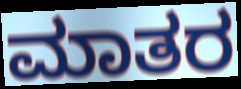
ಮಾತರ